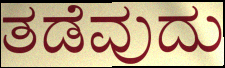
ತಡೆವುದು